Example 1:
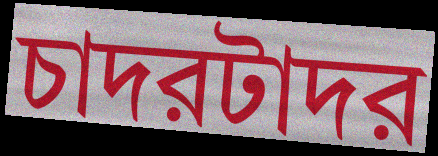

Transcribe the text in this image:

চাদরটাদর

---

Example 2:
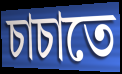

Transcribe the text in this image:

চাচাতে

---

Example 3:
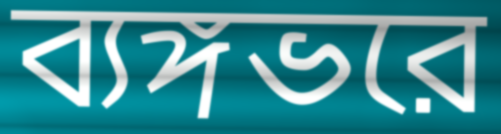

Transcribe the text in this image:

ব্যঙ্গভরে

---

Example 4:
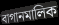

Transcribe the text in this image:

বাগানমালিক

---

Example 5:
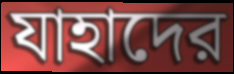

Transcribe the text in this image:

যাহাদের